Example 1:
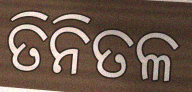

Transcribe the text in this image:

ତିନିତଳ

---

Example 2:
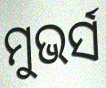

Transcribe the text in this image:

ମୁଭର୍ସ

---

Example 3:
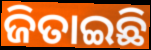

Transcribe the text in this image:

ଜିତାଇଛି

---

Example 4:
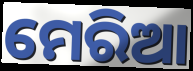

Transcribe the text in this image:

ମେରିଆ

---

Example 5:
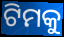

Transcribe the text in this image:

ଟିମକୁ